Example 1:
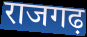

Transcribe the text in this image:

राजगढ़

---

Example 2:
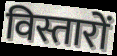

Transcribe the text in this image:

विस्तारों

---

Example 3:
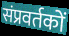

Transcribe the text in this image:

संप्रवर्तकों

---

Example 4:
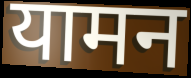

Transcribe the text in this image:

यामन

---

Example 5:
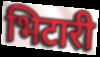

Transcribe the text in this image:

भिटारी